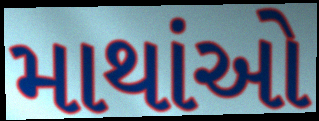
માથાંઓ